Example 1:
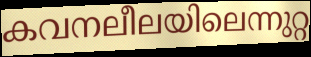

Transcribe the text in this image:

കവനലീലയിലെന്നുറ്റ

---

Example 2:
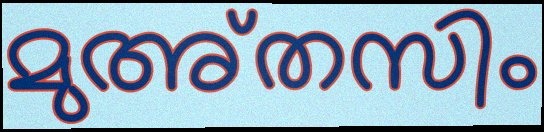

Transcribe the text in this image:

മുഅ്തസിം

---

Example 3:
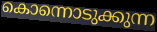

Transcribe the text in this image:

കൊന്നൊടുക്കുന്ന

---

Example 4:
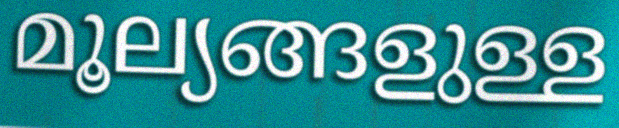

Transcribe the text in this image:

മൂല്യങ്ങളുള്ള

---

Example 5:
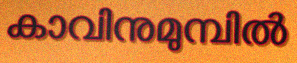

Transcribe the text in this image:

കാവിനുമുമ്പിൽ